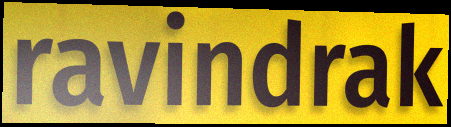
ravindrak